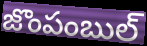
జొంపంబుల్